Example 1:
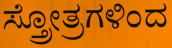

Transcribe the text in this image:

ಸ್ತ್ರೋತ್ರಗಳಿಂದ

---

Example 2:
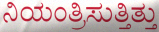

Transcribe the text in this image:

ನಿಯಂತ್ರಿಸುತ್ತಿತ್ತು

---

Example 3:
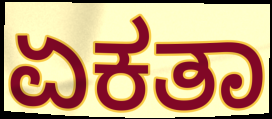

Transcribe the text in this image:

ಏಕತಾ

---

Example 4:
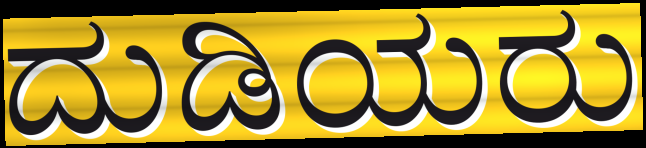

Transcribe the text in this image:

ದುಡಿಯರು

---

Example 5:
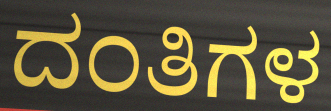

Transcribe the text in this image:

ದಂತಿಗಳ